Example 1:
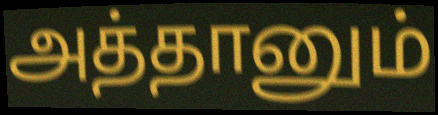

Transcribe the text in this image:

அத்தானும்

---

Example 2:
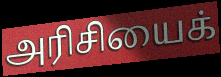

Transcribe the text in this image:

அரிசியைக்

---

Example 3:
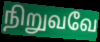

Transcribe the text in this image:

நிறுவவே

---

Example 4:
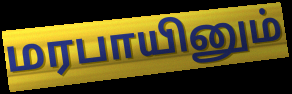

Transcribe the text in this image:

மரபாயினும்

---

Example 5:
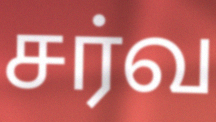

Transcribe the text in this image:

சர்வ